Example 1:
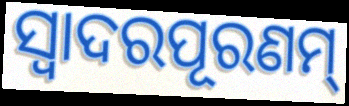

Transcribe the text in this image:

ସ୍ଵାଦରପୂରଣମ୍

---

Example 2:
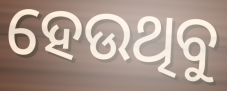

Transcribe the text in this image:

ହେଉଥିବୁ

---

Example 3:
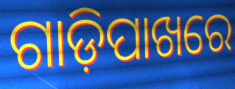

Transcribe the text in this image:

ଗାଡ଼ିପାଖରେ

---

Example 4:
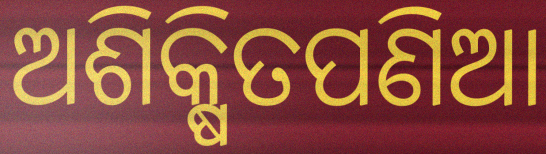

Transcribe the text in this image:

ଅଶିକ୍ଷିତପଣିଆ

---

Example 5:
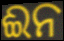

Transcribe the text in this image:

ଈନ